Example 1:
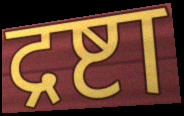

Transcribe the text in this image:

द्रष्टा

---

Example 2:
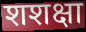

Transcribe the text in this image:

शशक्षा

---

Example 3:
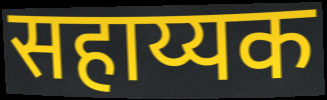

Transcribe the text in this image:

सहाय्यक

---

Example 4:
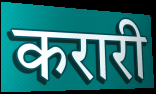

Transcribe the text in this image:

करारी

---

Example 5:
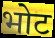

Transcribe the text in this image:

भोट